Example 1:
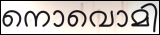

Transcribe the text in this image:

നൊവൊമി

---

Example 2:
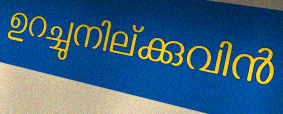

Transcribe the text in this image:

ഉറച്ചുനില്ക്കുവിൻ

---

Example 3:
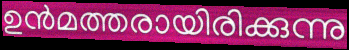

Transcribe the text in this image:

ഉൻമത്തരായിരിക്കുന്നു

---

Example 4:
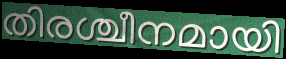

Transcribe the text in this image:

തിരശ്ചീനമായി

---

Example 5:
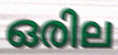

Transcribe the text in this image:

ഒരില